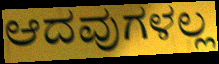
ಆದವುಗಳಲ್ಲ